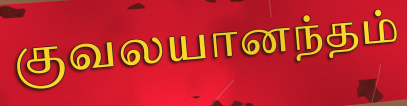
குவலயானந்தம்